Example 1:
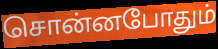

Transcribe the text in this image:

சொன்னபோதும்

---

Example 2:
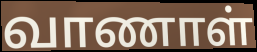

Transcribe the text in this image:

வாணாள்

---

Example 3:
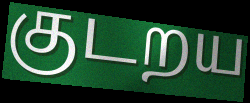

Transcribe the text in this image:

குடறய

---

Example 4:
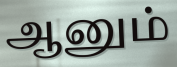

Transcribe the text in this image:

ஆனும்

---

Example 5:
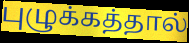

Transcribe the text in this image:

புழுக்கத்தால்